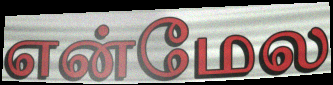
என்மேல